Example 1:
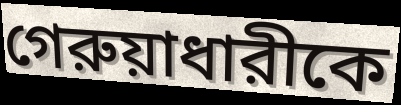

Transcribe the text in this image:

গেরুয়াধারীকে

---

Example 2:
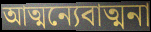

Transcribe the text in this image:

আত্মন্যেবাত্মনা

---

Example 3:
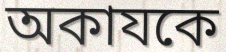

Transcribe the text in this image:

অকাযকে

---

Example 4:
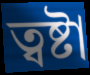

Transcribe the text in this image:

ত্বষ্টা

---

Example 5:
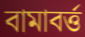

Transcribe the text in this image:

বামাবর্ত্ত